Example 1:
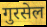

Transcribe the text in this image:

गुरसेल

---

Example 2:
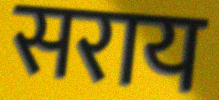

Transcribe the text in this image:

सराय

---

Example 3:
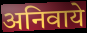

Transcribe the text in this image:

अनिवाये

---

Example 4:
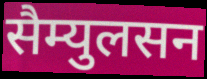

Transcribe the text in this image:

सैम्युलसन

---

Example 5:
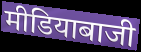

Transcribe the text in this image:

मीडियाबाजी